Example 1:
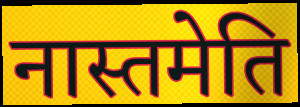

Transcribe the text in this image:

नास्तमेति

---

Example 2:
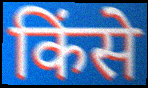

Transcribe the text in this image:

किंसे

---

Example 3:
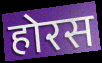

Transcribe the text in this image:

होरस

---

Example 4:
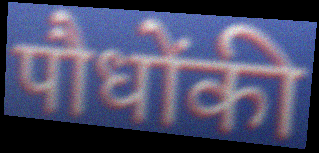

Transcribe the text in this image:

पौधोंकी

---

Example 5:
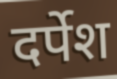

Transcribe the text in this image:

दर्पेश